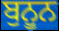
ਬੁਨੂਨ